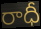
రాధీ